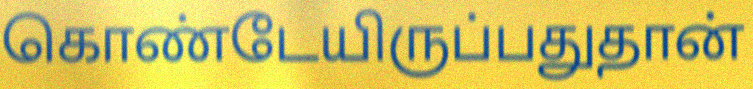
கொண்டேயிருப்பதுதான்